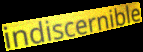
indiscernible